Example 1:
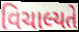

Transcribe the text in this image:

વિચાલ્યતે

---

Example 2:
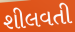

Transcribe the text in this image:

શીલવતી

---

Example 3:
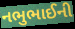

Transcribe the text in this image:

નભુભાઈની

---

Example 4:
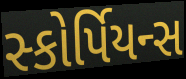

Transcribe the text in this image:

સ્કોર્પિયન્સ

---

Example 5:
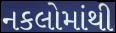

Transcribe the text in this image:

નકલોમાંથી